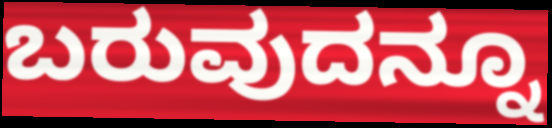
ಬರುವುದನ್ನೂ